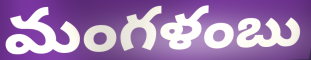
మంగళంబు